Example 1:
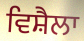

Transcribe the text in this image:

ਵਿਸ਼ੈਲਾ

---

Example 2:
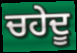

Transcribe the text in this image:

ਚਹੇਦੂ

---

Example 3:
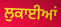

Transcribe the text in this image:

ਲੁਕਾਈਆਂ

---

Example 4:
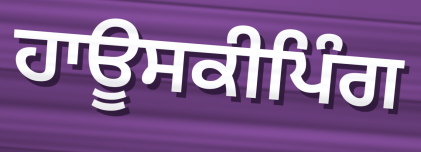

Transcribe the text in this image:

ਹਾਊਸਕੀਪਿੰਗ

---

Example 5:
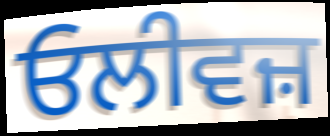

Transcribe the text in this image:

ਓਲੀਵਜ਼